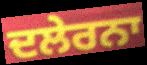
ਦਲੇਰਨਾ